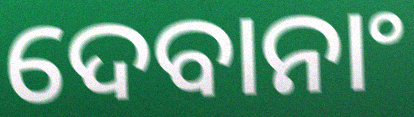
ଦେବାନାଂ